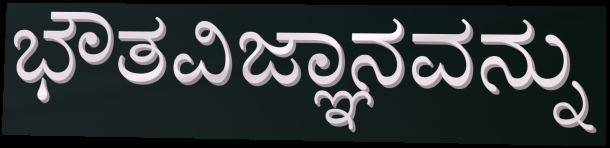
ಭೌತವಿಜ್ಞಾನವನ್ನು